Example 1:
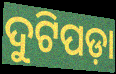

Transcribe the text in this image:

ଦୁଟିପଡ଼ା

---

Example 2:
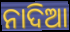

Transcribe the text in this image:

ନାଦିଆ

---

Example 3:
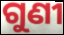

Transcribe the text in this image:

ଗୁଣୀ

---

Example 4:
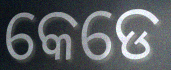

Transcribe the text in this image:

କେଡେ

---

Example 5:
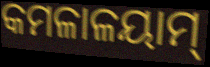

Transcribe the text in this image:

କମଳାଳୟାମ୍